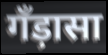
गँड़ासा